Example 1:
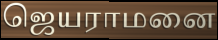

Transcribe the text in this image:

ஜெயராமனை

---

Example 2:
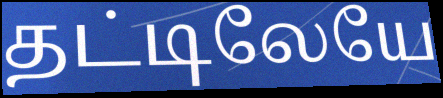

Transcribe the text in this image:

தட்டிலேயே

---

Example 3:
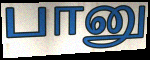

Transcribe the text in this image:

பானு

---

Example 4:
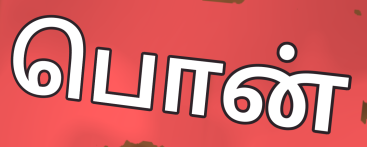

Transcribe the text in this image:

பொன்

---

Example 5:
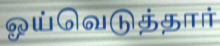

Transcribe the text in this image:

ஓய்வெடுத்தார்